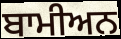
ਬਾਮੀਅਨ